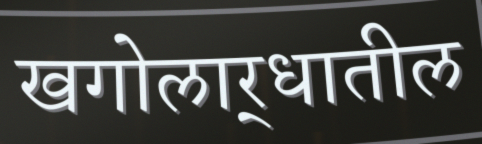
खगोलार्धातील